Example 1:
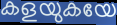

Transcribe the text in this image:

കളയുകയേ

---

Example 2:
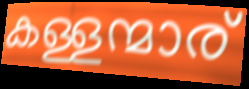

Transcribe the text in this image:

കള്ളന്മാര്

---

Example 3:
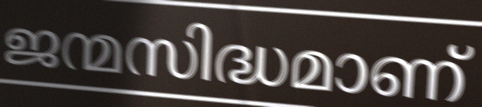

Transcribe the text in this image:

ജന്മസിദ്ധമാണ്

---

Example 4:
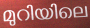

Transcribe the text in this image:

മുറിയിലെ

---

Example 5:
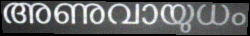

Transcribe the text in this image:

അണുവായുധം